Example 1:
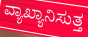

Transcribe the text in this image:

ವ್ಯಾಖ್ಯಾನಿಸುತ್ತ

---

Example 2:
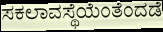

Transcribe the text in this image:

ಸಕಲಾವಸ್ಥೆಯೆಂತೆಂದಡೆ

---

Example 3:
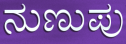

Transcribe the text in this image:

ನುಣುಪು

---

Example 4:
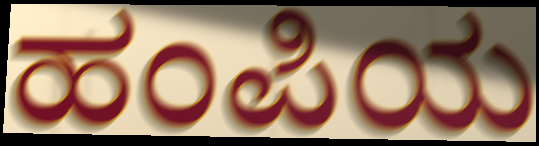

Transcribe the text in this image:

ಹಂಪಿಯ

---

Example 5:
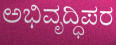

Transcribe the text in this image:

ಅಭಿವೃದ್ಧಿಪರ